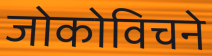
जोकोविचने